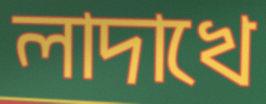
লাদাখে